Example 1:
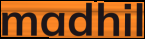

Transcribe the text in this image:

madhil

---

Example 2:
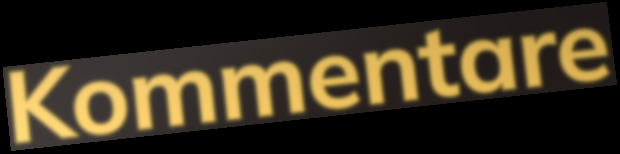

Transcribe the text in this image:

Kommentare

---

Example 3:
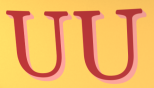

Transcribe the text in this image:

UU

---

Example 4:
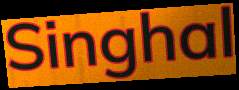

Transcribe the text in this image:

Singhal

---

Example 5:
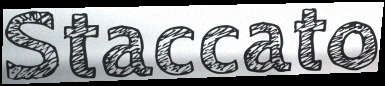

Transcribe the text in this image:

Staccato